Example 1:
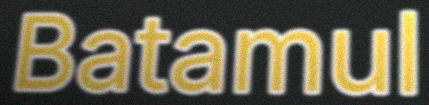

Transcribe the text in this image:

Batamul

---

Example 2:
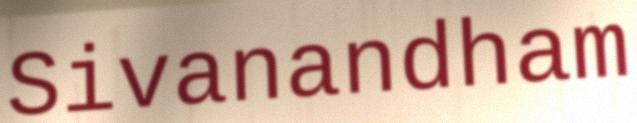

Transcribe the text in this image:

Sivanandham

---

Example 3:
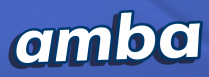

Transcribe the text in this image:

amba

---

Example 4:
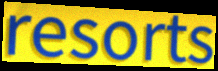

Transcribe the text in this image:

resorts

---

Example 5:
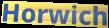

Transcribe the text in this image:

Horwich